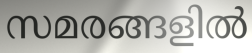
സമരങ്ങളിൽ